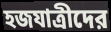
হজযাত্রীদের